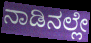
ನಾಡಿನಲ್ಲೇ